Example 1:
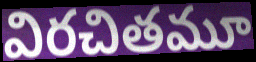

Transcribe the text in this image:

విరచితమూ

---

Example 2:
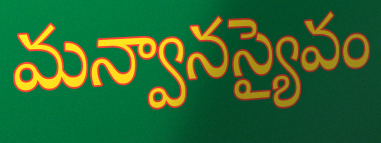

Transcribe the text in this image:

మన్వానస్యైవం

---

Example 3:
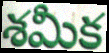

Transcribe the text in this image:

శమీక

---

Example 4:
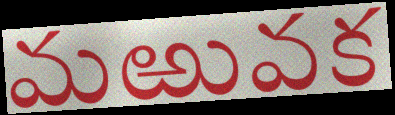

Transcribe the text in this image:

మఱువక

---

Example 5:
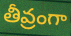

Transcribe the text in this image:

తీవ్రంగా